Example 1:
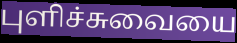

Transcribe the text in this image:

புளிச்சுவையை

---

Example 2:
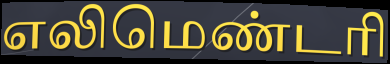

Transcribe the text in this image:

எலிமெண்டரி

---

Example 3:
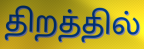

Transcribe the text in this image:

திறத்தில்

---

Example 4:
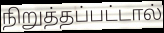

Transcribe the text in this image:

நிறுத்தப்பட்டால்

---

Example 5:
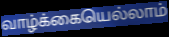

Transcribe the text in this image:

வாழ்க்கையெல்லாம்